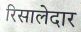
रिसालेदार